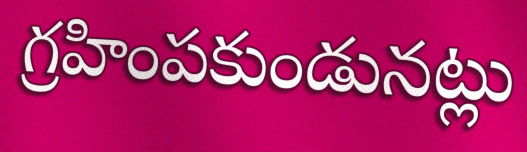
గ్రహింపకుండునట్లు